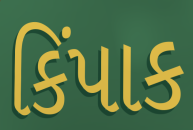
કિંપાક